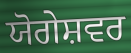
ਯੋਗੇਸ਼ਵਰ